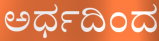
ಅರ್ಧದಿಂದ